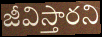
జీవిస్తారని